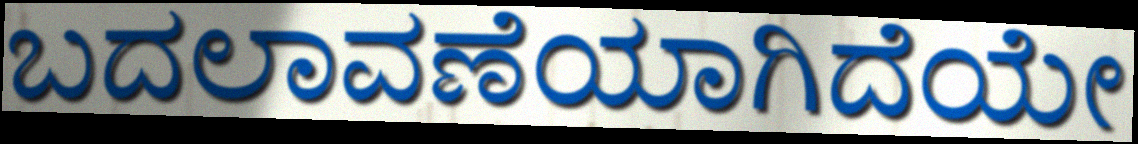
ಬದಲಾವಣೆಯಾಗಿದೆಯೇ